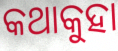
କଥାକୁହା